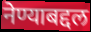
नेण्याबद्दल